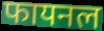
फायनल